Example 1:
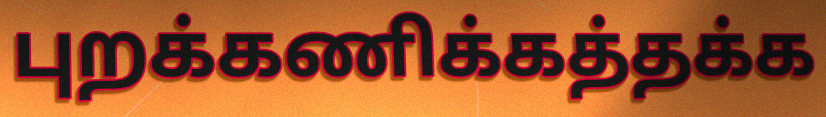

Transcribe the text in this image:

புறக்கணிக்கத்தக்க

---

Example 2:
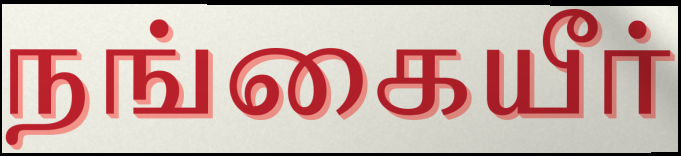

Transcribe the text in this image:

நங்கையீர்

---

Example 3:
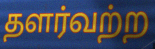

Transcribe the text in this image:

தளர்வற்ற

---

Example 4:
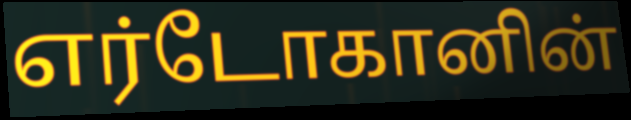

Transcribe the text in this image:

எர்டோகானின்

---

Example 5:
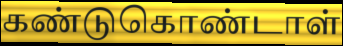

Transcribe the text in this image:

கண்டுகொண்டாள்